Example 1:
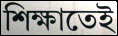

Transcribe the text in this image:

শিক্ষাতেই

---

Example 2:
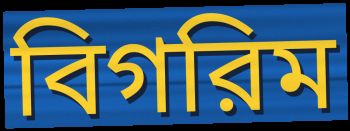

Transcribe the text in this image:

বিগরিম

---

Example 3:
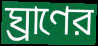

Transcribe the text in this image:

ঘ্রাণের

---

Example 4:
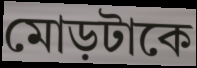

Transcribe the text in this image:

মোড়টাকে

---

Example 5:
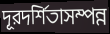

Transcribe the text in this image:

দূরদর্শিতাসম্পন্ন